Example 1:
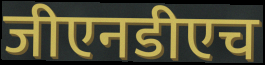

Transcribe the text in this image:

जीएनडीएच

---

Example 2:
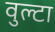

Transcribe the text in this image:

वुल्टा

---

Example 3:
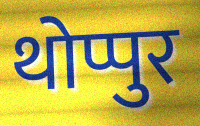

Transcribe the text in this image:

थोप्पुर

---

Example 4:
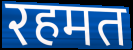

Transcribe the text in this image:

रहमत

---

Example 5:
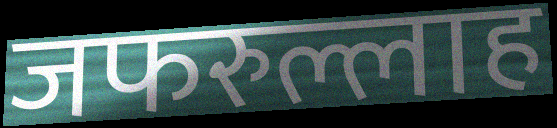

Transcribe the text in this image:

जफरुल्लाह